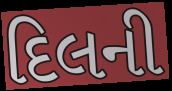
દિલની